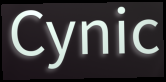
Cynic